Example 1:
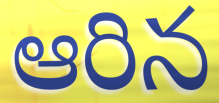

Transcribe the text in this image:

ఆరిన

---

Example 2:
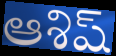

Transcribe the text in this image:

ఆశిష్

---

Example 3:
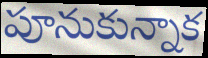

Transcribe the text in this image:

పూనుకున్నాక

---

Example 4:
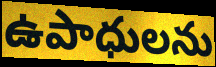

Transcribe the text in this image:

ఉపాధులను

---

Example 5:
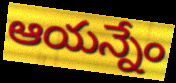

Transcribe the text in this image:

ఆయన్నేం